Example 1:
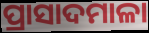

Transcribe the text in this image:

ପ୍ରାସାଦମାଳା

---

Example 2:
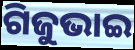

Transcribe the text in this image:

ଗିଜୁଭାଇ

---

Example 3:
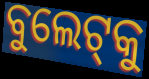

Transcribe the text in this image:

ବୁଲେଟ୍‌କୁ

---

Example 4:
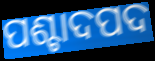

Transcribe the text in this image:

ପଶ୍ଚାଦପଦ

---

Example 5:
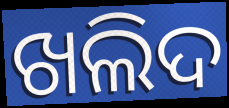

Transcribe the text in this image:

ଖଲିଦ